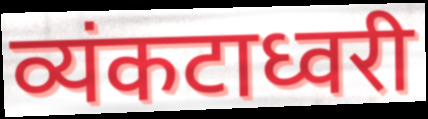
व्यंकटाध्वरी